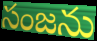
సంజను